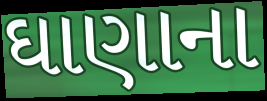
ઘાણાના